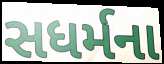
સધર્મના